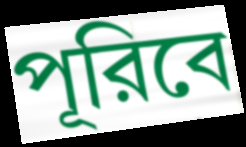
পূরিবে